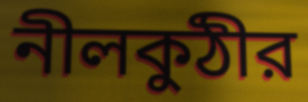
নীলকুঠীর